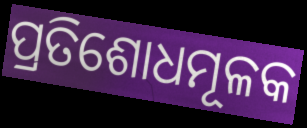
ପ୍ରତିଶୋଧମୂଳକ